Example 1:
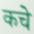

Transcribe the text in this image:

कचे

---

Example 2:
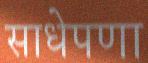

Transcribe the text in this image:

साधेपणा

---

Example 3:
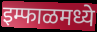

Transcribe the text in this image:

इम्फाळमध्ये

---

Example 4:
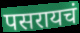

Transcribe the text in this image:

पसरायचं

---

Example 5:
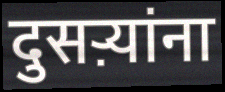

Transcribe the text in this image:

दुसऱ्‍यांना